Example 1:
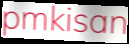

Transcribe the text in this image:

pmkisan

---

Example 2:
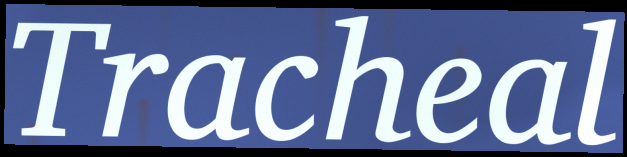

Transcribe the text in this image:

Tracheal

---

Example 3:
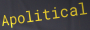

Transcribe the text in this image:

Apolitical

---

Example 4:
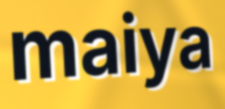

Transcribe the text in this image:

maiya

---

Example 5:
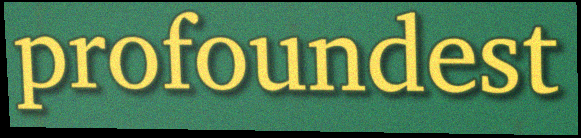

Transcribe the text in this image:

profoundest